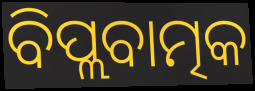
ବିପ୍ଲବାତ୍ମକ